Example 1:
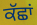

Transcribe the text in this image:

ਕੱਛਾਂ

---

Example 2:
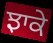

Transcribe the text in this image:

ਝਾਕੇ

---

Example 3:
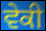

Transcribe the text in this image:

ਵੇਕੀ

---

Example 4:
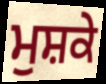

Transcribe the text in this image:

ਮੁਸ਼ਕੇ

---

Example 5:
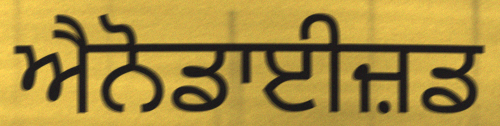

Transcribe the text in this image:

ਐਨੋਡਾਈਜ਼ਡ